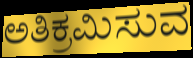
ಅತಿಕ್ರಮಿಸುವ